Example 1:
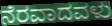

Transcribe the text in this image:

ನೆರವಾದವಳು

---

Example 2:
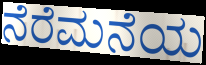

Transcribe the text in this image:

ನೆರೆಮನೆಯ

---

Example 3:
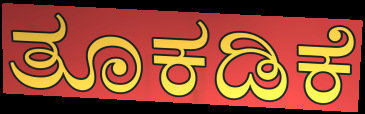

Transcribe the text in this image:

ತೂಕಡಿಕೆ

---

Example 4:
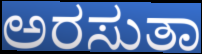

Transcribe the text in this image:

ಅರಸುತಾ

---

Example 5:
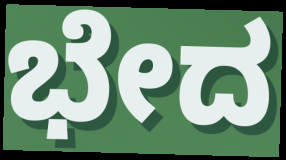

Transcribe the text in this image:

ಭೇದ